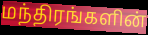
மந்திரங்களின்